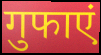
गुफाएं